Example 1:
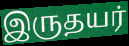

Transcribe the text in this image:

இருதயர்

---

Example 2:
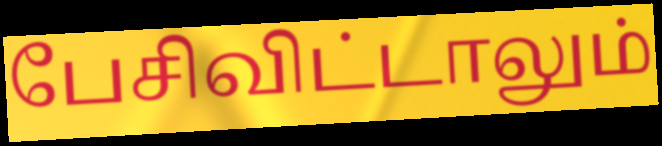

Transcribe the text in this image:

பேசிவிட்டாலும்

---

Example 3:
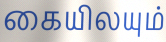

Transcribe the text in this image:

கையிலயும்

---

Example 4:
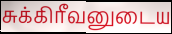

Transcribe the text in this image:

சுக்கிரீவனுடைய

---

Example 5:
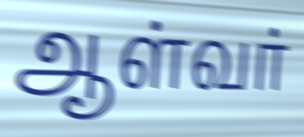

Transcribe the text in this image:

ஆள்வர்